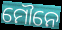
ମୌନେ